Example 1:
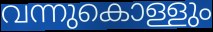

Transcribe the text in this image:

വന്നുകൊള്ളും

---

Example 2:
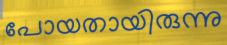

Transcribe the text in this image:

പോയതായിരുന്നു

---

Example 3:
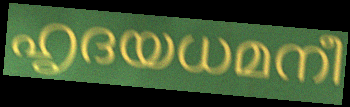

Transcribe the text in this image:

ഹൃദയധമനീ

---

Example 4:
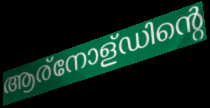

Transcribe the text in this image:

ആര്നോള്ഡിന്റെ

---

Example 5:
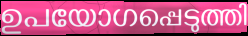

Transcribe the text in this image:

ഉപയോഗപ്പെടുത്തി